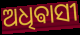
ଅଧିଵାସୀ